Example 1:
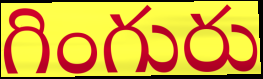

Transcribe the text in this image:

గింగురు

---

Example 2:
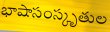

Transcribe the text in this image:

భాషాసంస్కృతుల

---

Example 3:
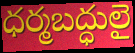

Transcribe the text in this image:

ధర్మబద్ధులై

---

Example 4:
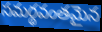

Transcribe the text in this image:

సమర్థవంతమైన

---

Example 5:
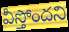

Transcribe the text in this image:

వీస్తోందని